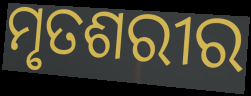
ମୃତଶରୀର